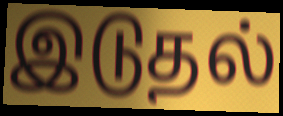
இடுதல்